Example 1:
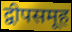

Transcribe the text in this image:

द्वीपसमूह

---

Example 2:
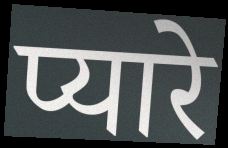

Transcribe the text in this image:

प्यारे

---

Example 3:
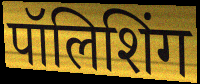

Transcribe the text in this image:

पॉलिशिंग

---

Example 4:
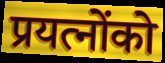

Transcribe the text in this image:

प्रयत्नोंको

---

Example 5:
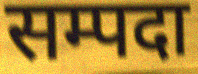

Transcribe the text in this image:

सम्पदा